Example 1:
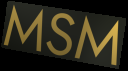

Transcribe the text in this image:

MSM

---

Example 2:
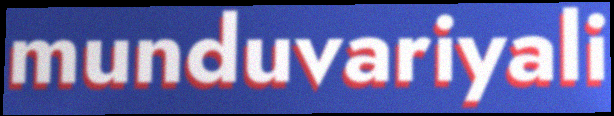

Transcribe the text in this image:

munduvariyali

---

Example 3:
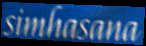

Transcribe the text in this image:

simhasana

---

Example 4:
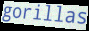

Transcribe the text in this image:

gorillas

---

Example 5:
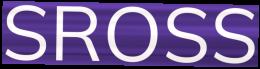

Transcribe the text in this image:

SROSS